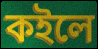
কইলে